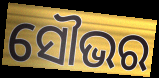
ସୌଭର